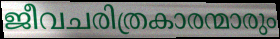
ജീവചരിത്രകാരന്മാരും